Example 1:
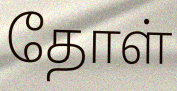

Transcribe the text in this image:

தோள்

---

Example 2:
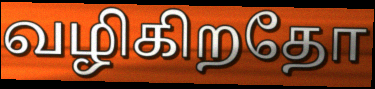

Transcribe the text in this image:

வழிகிறதோ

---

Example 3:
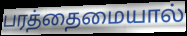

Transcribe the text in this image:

பரத்தைமையால்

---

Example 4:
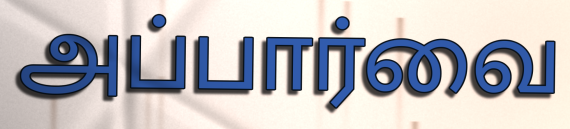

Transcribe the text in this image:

அப்பார்வை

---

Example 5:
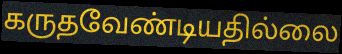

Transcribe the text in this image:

கருதவேண்டியதில்லை